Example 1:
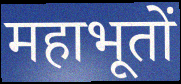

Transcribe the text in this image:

महाभूतों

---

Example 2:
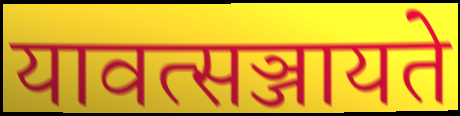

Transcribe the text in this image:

यावत्सञ्जायते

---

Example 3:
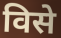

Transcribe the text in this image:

विसे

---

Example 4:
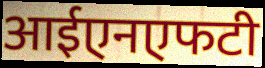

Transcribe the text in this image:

आईएनएफटी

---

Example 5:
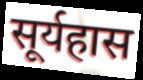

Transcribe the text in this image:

सूर्यहास